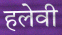
हलेवी